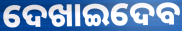
ଦେଖାଇଦେବ